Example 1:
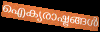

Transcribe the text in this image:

ഐക്യരാഷ്ട്രങ്ങൾ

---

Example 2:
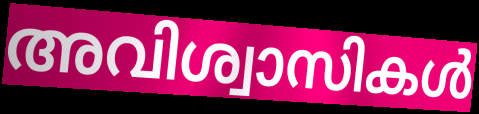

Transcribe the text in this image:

അവിശ്വാസികൾ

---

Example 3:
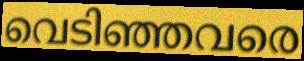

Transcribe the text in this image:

വെടിഞ്ഞവരെ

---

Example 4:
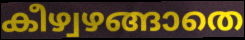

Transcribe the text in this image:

കീഴ്വഴങ്ങാതെ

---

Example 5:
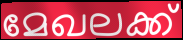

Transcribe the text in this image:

മേഖലക്ക്